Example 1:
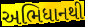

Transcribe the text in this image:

અભિધાનથી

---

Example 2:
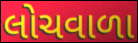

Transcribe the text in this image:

લોચવાળા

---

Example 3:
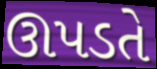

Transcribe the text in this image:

ઊપડતે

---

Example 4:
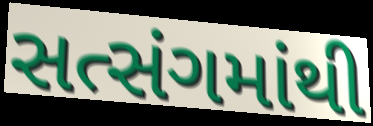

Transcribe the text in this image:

સત્સંગમાંથી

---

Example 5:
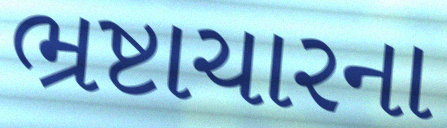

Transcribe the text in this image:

ભ્રષ્ટાચારના